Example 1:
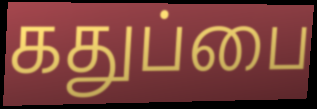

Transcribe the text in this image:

கதுப்பை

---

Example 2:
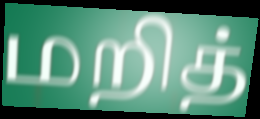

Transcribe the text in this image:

மறித்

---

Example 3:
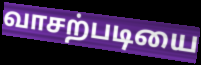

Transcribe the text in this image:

வாசற்படியை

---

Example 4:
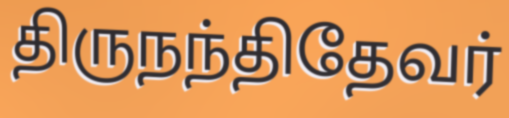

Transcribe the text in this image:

திருநந்திதேவர்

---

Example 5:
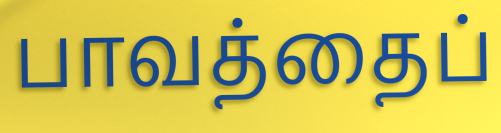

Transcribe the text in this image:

பாவத்தைப்